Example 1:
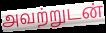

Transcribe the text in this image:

அவற்றுடன்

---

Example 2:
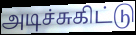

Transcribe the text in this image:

அடிச்சுகிட்டு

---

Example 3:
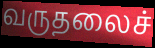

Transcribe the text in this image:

வருதலைச்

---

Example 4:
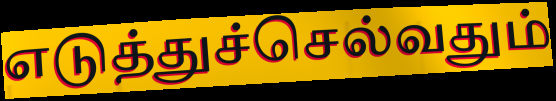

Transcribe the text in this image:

எடுத்துச்செல்வதும்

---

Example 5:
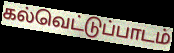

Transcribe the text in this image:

கல்வெட்டுப்பாடம்